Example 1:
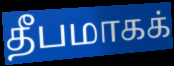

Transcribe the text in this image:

தீபமாகக்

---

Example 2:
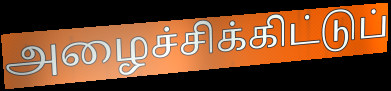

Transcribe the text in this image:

அழைச்சிக்கிட்டுப்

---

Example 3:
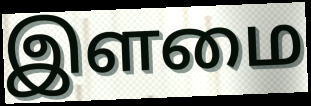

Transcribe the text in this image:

இளமை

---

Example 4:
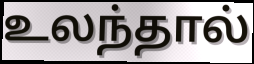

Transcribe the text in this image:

உலந்தால்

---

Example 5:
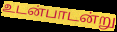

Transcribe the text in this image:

உடன்பாடன்று